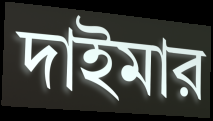
দাইমার